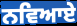
ਨਵਿਆਏ